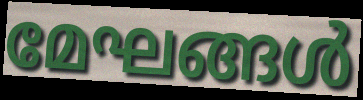
മേഘങ്ങൾ